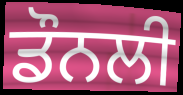
ਡੌਨਲੀ